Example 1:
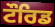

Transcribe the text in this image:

ਟੌਰਿਡ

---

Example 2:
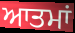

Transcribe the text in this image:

ਆਤਮਾਂ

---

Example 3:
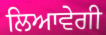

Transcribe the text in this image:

ਲਿਆਵੇਗੀ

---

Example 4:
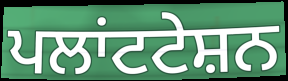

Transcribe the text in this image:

ਪਲਾਂਟਟੇਸ਼ਨ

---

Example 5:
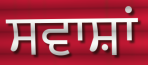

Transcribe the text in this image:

ਸਵਾਸ਼ਾਂ